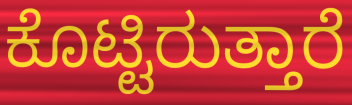
ಕೊಟ್ಟಿರುತ್ತಾರೆ